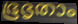
ഭൂഭൃതാം